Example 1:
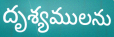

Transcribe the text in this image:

దృశ్యములను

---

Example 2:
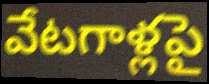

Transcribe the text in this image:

వేటగాళ్లపై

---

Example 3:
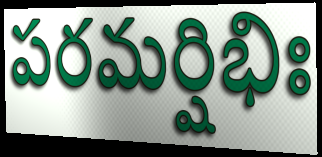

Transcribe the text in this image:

పరమర్షిభిః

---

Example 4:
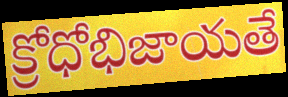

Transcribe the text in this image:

క్రోధోభిజాయతే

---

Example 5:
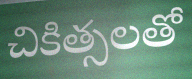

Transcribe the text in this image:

చికిత్సలతో